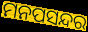
ମନପସନ୍ଦର